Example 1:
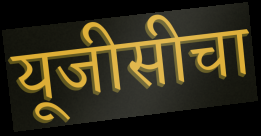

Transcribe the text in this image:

यूजीसीचा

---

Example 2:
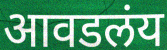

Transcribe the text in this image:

आवडलंय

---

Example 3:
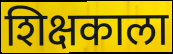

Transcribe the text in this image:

शिक्षकाला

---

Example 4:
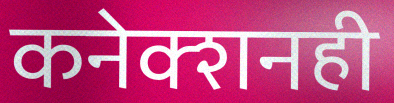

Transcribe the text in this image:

कनेक्शनही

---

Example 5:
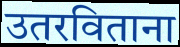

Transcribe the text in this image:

उतरविताना